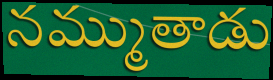
నమ్ముతాడు